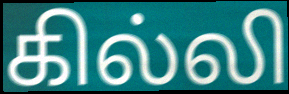
கில்லி